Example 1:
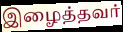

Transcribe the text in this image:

இழைத்தவர்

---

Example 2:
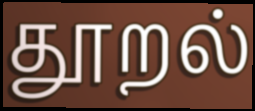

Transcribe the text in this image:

தூறல்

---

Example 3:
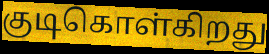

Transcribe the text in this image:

குடிகொள்கிறது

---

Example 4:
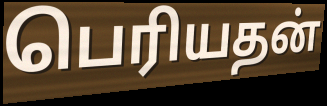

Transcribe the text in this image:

பெரியதன்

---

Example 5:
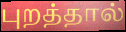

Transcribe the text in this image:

புறத்தால்